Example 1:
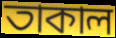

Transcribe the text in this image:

তাকাল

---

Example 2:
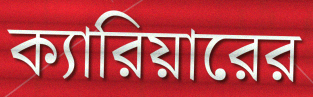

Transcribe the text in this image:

ক্যারিয়ারের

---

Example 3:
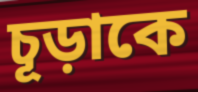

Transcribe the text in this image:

চূড়াকে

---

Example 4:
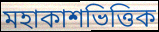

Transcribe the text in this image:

মহাকাশভিত্তিক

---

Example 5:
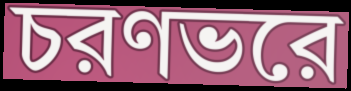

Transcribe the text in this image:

চরণভরে